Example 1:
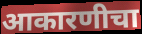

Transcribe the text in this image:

आकारणीचा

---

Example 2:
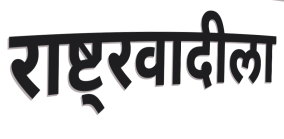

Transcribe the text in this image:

राष्ट्रवादीला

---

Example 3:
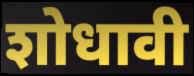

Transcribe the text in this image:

शोधावी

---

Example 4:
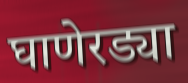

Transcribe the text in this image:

घाणेरड्या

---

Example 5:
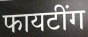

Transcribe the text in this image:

फायटींग